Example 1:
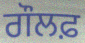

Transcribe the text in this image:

ਗੌਲਫ਼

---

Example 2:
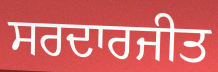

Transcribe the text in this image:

ਸਰਦਾਰਜੀਤ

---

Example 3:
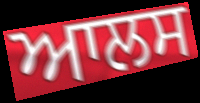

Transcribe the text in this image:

ਆਲਸ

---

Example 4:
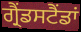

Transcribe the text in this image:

ਗ੍ਰੈਂਡਸਟੈਂਡਾਂ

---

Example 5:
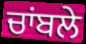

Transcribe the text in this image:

ਚਾਂਬਲੇ